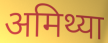
अमिथ्या